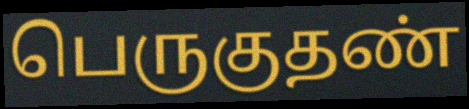
பெருகுதண்